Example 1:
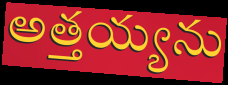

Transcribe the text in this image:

అత్తయ్యను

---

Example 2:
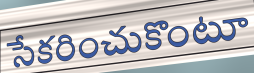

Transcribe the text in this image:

సేకరించుకొంటూ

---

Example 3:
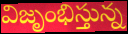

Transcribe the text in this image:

విజృంభిస్తున్న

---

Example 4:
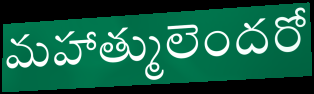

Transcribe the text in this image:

మహాత్ములెందరో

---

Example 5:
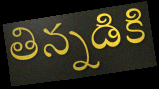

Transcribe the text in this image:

తిన్నడికి